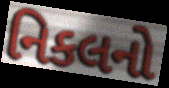
નિકલનો